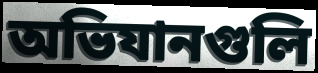
অভিযানগুলি